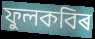
ফুলকবিৰ